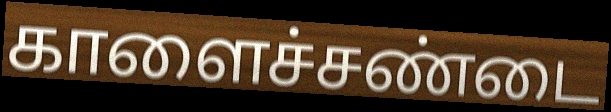
காளைச்சண்டை